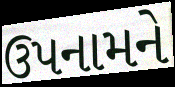
ઉપનામને